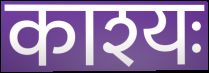
काश्यः